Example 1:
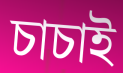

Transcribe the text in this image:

চাচাই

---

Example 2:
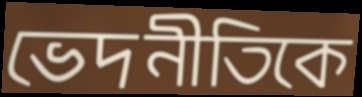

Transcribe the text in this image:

ভেদনীতিকে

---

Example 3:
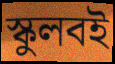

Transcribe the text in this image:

স্কুলবই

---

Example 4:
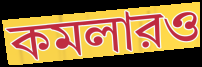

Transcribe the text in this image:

কমলারও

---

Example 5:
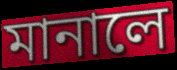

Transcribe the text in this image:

মানালে